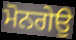
ਮੋਨਗੇਉ